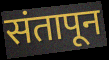
संतापून